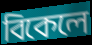
বিকেলে